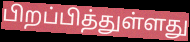
பிறப்பித்துள்ளது